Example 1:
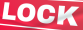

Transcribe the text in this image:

LOCK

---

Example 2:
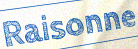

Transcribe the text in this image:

Raisonne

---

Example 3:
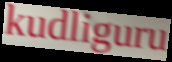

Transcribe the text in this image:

kudliguru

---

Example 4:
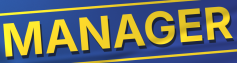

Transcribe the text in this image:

MANAGER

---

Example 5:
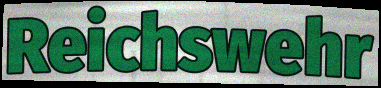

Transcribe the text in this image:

Reichswehr